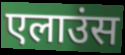
एलाउंस